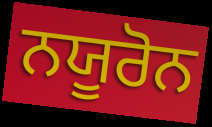
ਨਯੂਰੋਨ